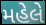
મહેલે